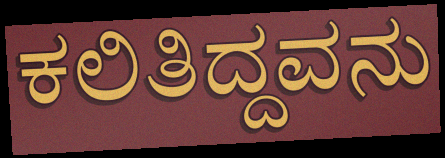
ಕಲಿತಿದ್ದವನು